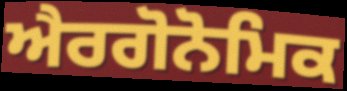
ਐਰਗੋਨੋਮਿਕ